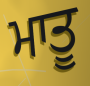
ਮਾਤੂ